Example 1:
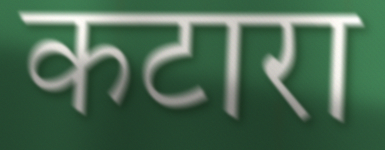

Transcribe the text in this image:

कटारा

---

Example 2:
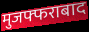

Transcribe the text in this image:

मुजफ्फराबाद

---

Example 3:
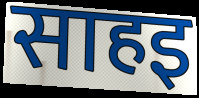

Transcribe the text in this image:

साहइ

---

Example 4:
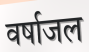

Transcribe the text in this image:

वर्षाजल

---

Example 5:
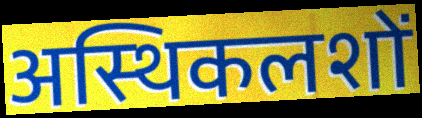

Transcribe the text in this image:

अस्थिकलशों